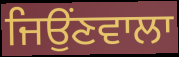
ਜਿਉਂਣਵਾਲਾ